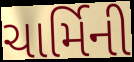
ચાર્મિની